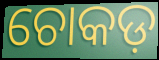
ଚୋକଡ଼